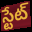
స్టేట్